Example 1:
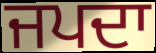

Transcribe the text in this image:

ਜਪਦਾ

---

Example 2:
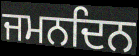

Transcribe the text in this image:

ਜਮਨਦਿਨ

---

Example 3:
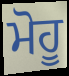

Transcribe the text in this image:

ਮੋਹੂ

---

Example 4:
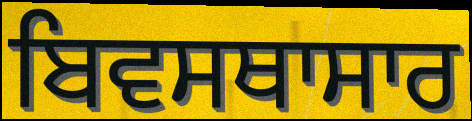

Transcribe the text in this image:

ਬਿਵਸਥਾਸਾਰ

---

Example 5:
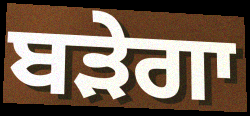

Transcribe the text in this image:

ਬੜੇਗਾ